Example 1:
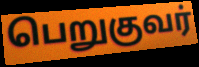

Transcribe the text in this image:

பெறுகுவர்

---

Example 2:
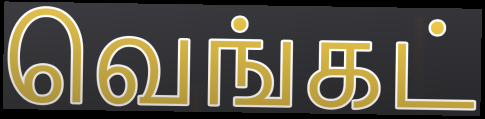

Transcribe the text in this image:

வெங்கட்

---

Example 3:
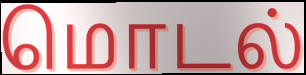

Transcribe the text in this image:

மொடல்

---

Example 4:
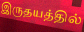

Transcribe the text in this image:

இருதயத்தில்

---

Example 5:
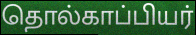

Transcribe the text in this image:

தொல்காப்பியர்